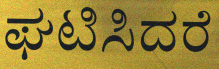
ಘಟಿಸಿದರೆ